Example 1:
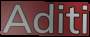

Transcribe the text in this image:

Aditi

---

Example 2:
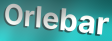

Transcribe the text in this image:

Orlebar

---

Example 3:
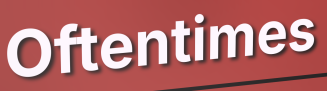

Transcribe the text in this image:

Oftentimes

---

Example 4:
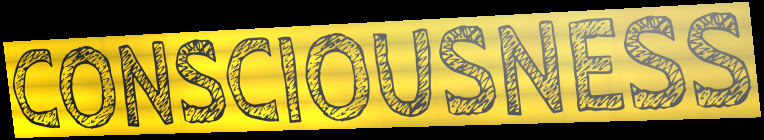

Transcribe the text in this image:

CONSCIOUSNESS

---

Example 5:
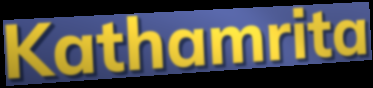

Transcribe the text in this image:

Kathamrita